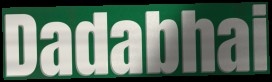
Dadabhai